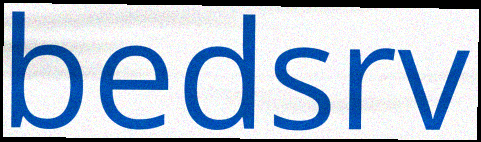
bedsrv